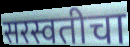
सरस्वतीचा